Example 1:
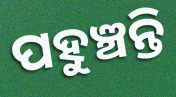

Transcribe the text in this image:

ପହୁଞ୍ଚନ୍ତି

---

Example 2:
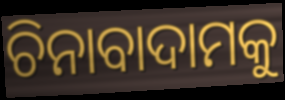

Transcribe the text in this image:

ଚିନାବାଦାମକୁ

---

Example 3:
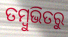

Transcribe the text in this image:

ତମ୍ବୁଭିତରୁ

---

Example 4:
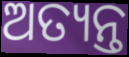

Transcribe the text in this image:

ଅତ୍ୟନ୍ତ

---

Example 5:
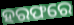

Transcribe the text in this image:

ହରଫରେ